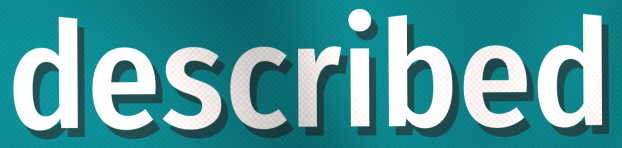
described